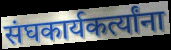
संघकार्यकर्त्यांना